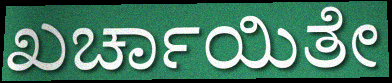
ಖರ್ಚಾಯಿತೇ